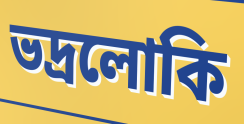
ভদ্রলোকি